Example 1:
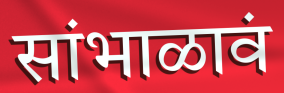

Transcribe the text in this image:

सांभाळावं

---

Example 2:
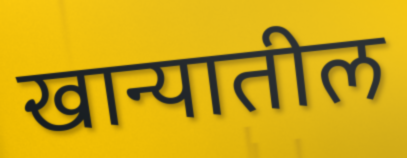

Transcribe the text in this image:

खान्यातील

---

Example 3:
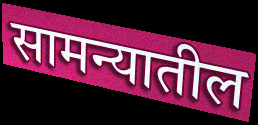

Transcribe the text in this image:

सामन्यातील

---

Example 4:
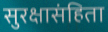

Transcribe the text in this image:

सुरक्षासंहिता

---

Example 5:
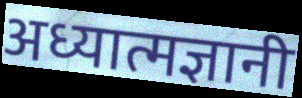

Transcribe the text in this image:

अध्यात्मज्ञानी